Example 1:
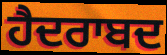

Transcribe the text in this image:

ਹੈਦਰਾਬਦ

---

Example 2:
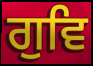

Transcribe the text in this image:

ਗੁਵਿ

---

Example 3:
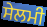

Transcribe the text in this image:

ਸੇਲਮੀ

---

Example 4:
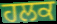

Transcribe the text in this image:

ਹਲਕ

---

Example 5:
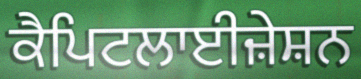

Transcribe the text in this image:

ਕੈਪਿਟਲਾਈਜ਼ੇਸ਼ਨ